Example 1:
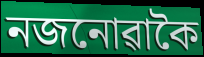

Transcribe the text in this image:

নজনোৱাকৈ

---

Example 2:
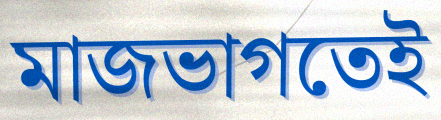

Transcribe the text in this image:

মাজভাগতেই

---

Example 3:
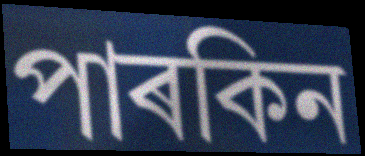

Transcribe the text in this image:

পাৰকিন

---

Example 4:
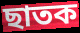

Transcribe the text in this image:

ছাতক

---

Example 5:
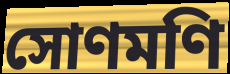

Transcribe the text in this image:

সোণমণি